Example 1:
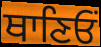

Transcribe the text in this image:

ਥਾਣਿਓਂ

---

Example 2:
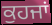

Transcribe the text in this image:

ਕੁਹਜਾਂ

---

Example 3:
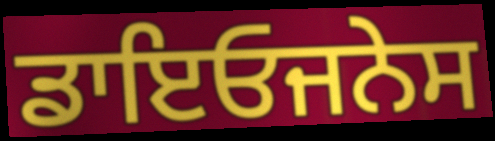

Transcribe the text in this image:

ਡਾਇਓਜਨੇਸ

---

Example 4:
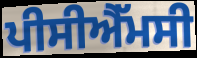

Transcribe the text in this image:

ਪੀਸੀਐੱਮਸੀ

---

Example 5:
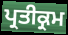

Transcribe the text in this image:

ਪ੍ਰਤੀਕ੍ਰਮ